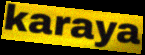
karaya